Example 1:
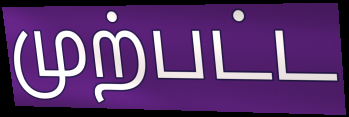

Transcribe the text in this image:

முற்பட்ட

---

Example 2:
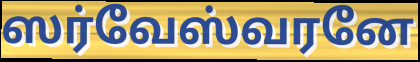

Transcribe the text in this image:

ஸர்வேஸ்வரனே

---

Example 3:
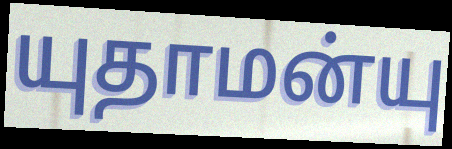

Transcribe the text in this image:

யுதாமன்யு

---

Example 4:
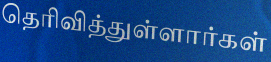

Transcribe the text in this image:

தெரிவித்துள்ளார்கள்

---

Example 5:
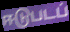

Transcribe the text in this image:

ஈடுபடப்